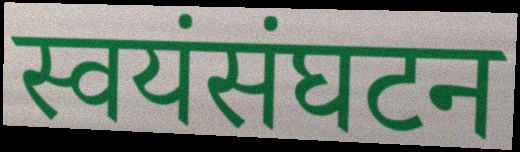
स्वयंसंघटन